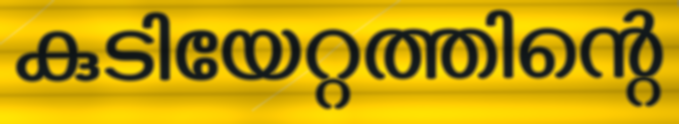
കുടിയേറ്റത്തിന്റെ